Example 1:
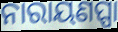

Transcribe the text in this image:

ନାରାୟଣପ୍ପା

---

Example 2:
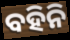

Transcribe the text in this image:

ବହିନି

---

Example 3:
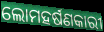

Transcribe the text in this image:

ଲୋମହର୍ଷଣକାରୀ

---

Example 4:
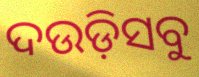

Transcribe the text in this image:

ଦଉଡ଼ିସବୁ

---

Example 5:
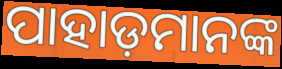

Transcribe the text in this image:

ପାହାଡ଼ମାନଙ୍କ